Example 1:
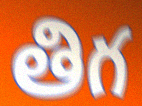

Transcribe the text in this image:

తిగ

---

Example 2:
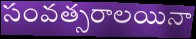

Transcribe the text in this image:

సంవత్సరాలయినా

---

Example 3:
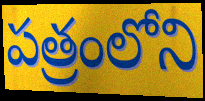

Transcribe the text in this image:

పత్రంలోని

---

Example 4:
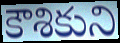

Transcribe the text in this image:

కౌశికుని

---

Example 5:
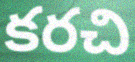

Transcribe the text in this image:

కరచి